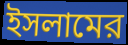
ইসলামের